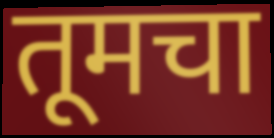
तूमचा